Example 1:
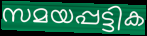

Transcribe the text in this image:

സമയപ്പട്ടിക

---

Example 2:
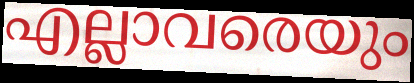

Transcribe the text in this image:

എല്ലാവരെയും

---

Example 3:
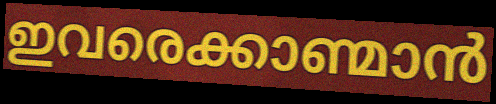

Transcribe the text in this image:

ഇവരെക്കാണ്മാൻ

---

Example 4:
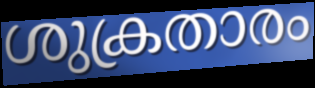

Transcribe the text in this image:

ശുക്രതാരം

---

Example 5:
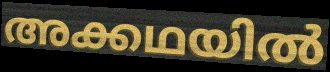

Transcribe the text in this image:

അക്കഥയിൽ